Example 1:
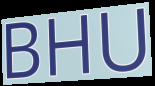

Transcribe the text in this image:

BHU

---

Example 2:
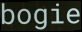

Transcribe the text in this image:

bogie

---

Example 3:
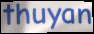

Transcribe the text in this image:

thuyan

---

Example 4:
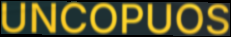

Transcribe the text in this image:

UNCOPUOS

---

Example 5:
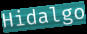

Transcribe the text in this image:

Hidalgo